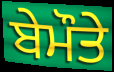
ਬੇਮੌਤੇ